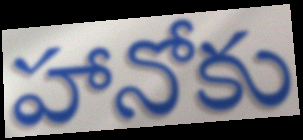
హానోకు